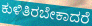
ಕುಳಿತಿರಬೇಕಾದರೆ